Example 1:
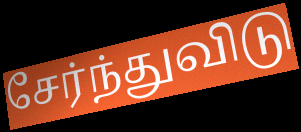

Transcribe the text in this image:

சேர்ந்துவிடு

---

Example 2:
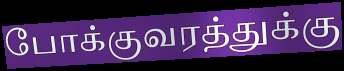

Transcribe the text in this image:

போக்குவரத்துக்கு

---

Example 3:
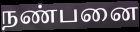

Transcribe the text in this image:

நண்பனை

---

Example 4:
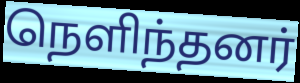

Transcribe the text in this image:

நெளிந்தனர்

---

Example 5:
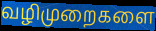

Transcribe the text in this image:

வழிமுறைகளை